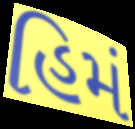
હિમં